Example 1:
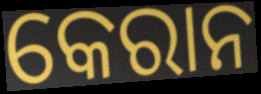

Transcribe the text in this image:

କେରାନ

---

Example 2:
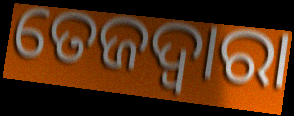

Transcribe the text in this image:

ତେଜଦ୍ୱାରା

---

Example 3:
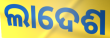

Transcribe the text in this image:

ଲାଦେଶ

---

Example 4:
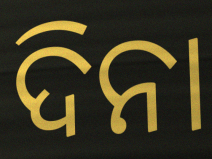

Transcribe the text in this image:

ଦିନା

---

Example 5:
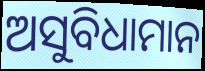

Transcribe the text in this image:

ଅସୁବିଧାମାନ